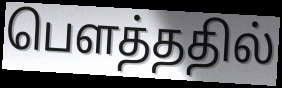
பௌத்ததில்